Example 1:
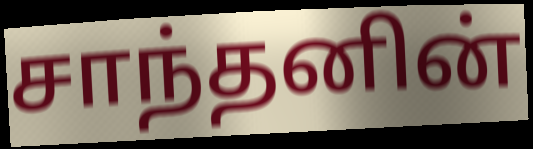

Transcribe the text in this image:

சாந்தனின்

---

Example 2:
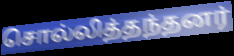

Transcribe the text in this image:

சொல்லித்தந்தனர்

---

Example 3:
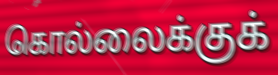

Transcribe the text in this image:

கொல்லைக்குக்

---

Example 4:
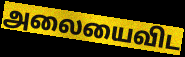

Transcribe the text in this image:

அலையைவிட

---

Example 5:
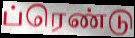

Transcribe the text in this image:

ப்ரெண்டு